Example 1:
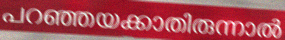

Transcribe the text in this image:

പറഞ്ഞയക്കാതിരുന്നാൽ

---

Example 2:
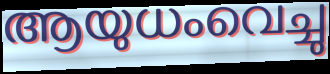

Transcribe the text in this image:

ആയുധംവെച്ചു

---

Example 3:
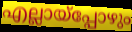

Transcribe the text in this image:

എല്ലായ്പ്പോഴും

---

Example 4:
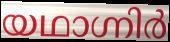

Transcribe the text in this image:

യഥാഗ്നിർ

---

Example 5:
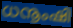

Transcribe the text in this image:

ധനൂംഷി